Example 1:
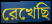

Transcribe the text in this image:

রেখেছি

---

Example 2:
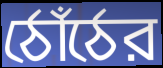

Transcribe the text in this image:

ঠোঁঠের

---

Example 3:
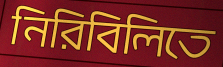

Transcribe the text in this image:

নিরিবিলিতে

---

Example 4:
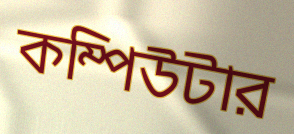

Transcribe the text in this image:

কম্পিউটার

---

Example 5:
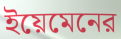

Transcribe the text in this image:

ইয়েমেনের